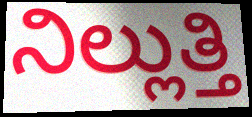
ನಿಲ್ಲುತ್ತಿ